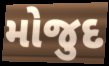
મોજુદ